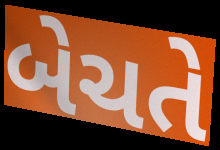
બેચતે